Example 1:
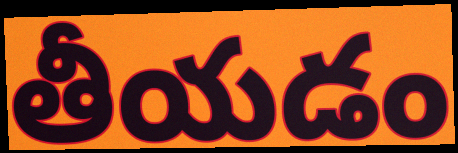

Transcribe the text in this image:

తీయడం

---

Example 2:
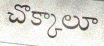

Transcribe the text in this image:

చొక్కాలూ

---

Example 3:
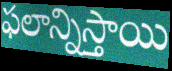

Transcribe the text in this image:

ఫలాన్నిస్తాయి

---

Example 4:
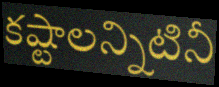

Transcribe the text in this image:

కష్టాలన్నిటినీ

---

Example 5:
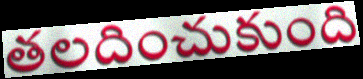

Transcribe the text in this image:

తలదించుకుంది